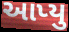
આપ્યુ